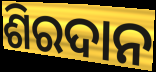
ଶିରଦାନ